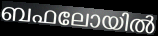
ബഫലോയിൽ